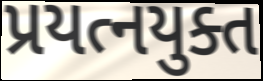
પ્રયત્નયુક્ત